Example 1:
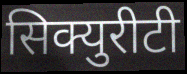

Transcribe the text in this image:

सिक्युरीटी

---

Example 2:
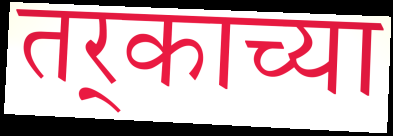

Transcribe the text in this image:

तर्काच्या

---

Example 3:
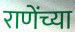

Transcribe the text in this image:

राणेंच्या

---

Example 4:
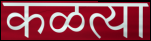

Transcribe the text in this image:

कळत्या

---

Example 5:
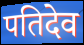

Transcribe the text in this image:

पतिदेव